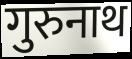
गुरुनाथ